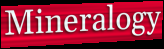
Mineralogy